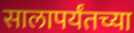
सालापर्यंतच्या